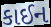
કાઈન